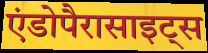
एंडोपैरासाइट्स